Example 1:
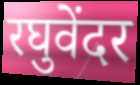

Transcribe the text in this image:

रघुवेंदर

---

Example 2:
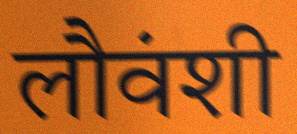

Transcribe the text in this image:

लौवंशी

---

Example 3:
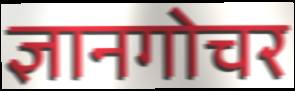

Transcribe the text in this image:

ज्ञानगोचर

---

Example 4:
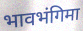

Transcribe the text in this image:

भावभंगिमा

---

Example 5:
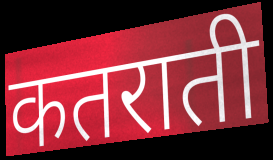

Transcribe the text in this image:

कतराती